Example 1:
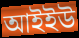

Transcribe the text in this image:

আইইউ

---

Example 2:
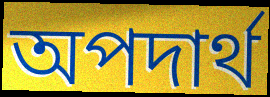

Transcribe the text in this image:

অপদার্থ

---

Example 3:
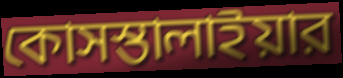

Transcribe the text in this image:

কোসস্তালাইয়ার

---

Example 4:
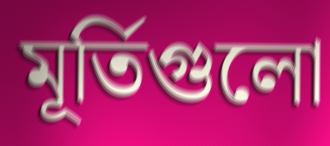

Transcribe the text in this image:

মূর্তিগুলো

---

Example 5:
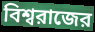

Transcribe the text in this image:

বিশ্বরাজের